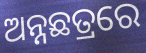
ଅନ୍ନଛତ୍ରରେ